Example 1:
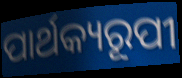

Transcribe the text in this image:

ପାର୍ଥକ୍ୟରୂପୀ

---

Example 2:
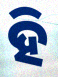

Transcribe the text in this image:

ହି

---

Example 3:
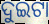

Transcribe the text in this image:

ଦୁଇଟା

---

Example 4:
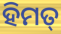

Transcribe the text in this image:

ହିମତ୍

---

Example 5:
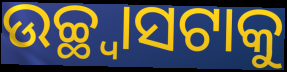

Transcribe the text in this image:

ଉଚ୍ଛ୍ୱାସଟାକୁ